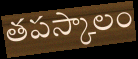
తపస్కాలం